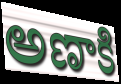
అణాకి